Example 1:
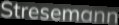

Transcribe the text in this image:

Stresemann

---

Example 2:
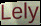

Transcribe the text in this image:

Lely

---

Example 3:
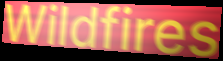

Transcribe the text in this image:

Wildfires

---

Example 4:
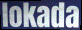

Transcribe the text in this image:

lokada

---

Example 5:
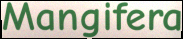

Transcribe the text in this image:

Mangifera